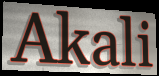
Akali